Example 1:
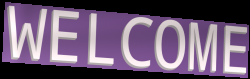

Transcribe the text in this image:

WELCOME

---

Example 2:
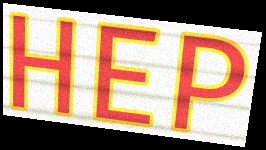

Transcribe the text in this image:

HEP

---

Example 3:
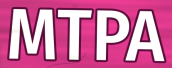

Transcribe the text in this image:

MTPA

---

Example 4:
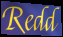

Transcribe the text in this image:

Redd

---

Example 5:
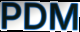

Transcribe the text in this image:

PDM